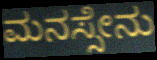
ಮನಸ್ಸೇನು